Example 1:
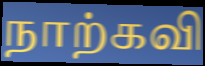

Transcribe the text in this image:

நாற்கவி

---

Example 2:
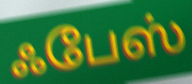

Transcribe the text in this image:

ஃபேஸ்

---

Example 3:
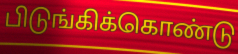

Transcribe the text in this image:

பிடுங்கிக்கொண்டு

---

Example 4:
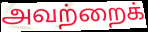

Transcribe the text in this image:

அவற்றைக்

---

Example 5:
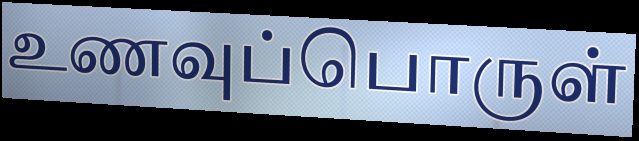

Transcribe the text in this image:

உணவுப்பொருள்